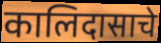
कालिदासाचे